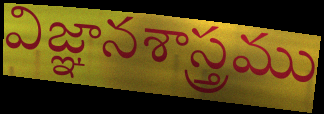
విజ్ఞానశాస్త్రము